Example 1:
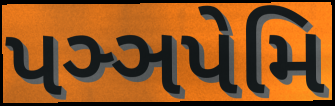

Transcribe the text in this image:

પઞ્ઞપેમિ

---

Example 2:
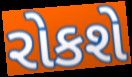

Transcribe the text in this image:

રોકશે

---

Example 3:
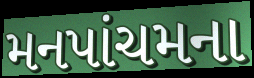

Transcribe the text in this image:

મનપાંચમના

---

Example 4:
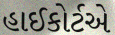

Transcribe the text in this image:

હાઈકોર્ટએ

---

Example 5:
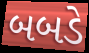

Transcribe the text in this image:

બબડે